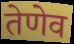
तेणेव